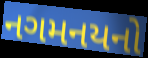
નગમનયનો